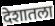
देशातला